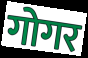
गोगर